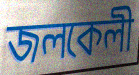
জলকেলী